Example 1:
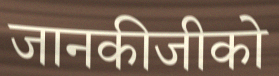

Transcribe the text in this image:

जानकीजीको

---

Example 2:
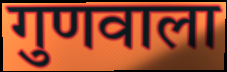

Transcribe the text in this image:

गुणवाला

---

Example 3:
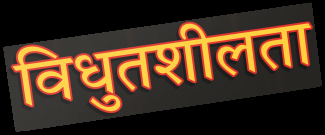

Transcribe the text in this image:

विधुतशीलता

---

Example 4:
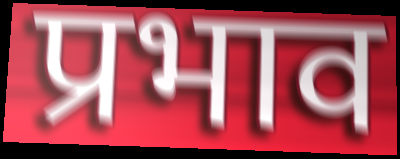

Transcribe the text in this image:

प्रभाव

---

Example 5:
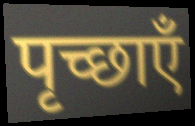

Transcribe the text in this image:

पृच्छाएँ